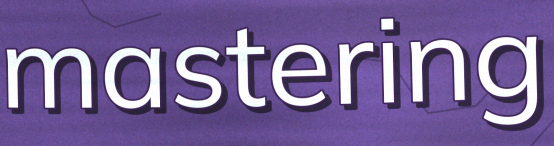
mastering